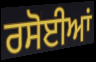
ਰਸੋਈਆਂ